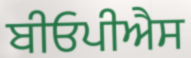
ਬੀਓਪੀਐਸ